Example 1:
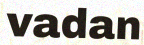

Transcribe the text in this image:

vadan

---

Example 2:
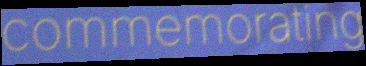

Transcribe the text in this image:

commemorating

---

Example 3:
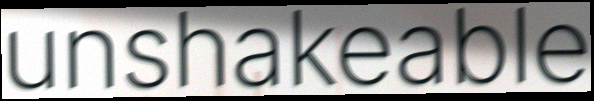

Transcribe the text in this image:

unshakeable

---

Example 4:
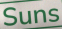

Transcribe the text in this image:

Suns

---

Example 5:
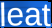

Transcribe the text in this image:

leat